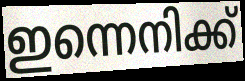
ഇന്നെനിക്ക്